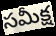
సమీక్ష